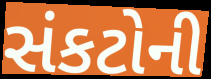
સંકટોની